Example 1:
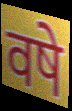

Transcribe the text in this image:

वषे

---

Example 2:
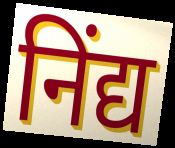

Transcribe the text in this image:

निंद्य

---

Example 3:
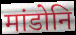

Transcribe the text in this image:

मांडोनि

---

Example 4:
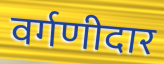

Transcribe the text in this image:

वर्गणीदार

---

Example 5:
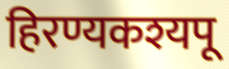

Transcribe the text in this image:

हिरण्यकश्यपू